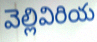
వెల్లివిరియ